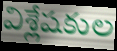
విశ్లేషకుల